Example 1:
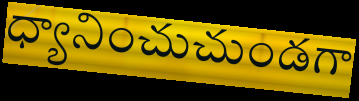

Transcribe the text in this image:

ధ్యానించుచుండగా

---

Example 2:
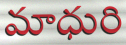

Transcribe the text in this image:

మాధురి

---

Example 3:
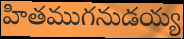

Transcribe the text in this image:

హితముగనుడయ్య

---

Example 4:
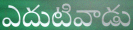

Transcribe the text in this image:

ఎదుటివాడు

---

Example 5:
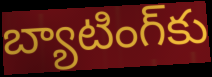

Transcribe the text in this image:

బ్యాటింగ్‌కు